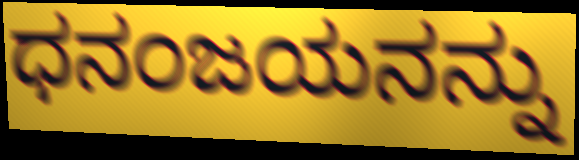
ಧನಂಜಯನನ್ನು